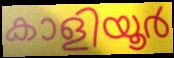
കാളിയൂർ